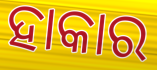
ହାକାର